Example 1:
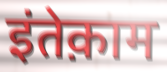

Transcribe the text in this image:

इंतेक़ाम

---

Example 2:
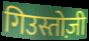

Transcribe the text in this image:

गिउस्तोज़ी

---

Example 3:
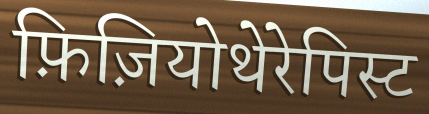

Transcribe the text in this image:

फ़िज़ियोथेरेपिस्ट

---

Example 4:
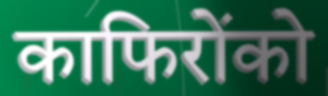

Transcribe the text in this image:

काफिरोंको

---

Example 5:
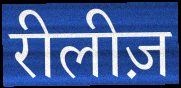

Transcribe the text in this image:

रीलीज़